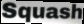
Squash